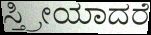
ಸ್ತ್ರೀಯಾದರೆ